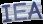
IEA